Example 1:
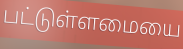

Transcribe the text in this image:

பட்டுள்ளமையை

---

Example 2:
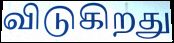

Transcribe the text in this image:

விடுகிறது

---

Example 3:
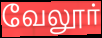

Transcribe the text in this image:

வேலூர்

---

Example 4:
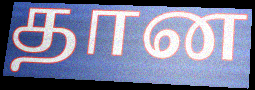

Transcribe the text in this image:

தான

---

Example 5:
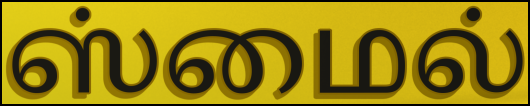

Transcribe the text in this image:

ஸ்மைல்